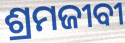
ଶ୍ରମଜୀବୀ